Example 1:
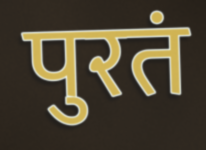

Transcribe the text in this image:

पुरतं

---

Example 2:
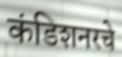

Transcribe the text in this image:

कंडिशनरचे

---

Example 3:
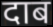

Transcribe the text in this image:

दाब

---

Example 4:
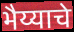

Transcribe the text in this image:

भैय्याचे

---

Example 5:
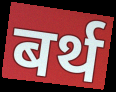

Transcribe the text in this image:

बर्थ